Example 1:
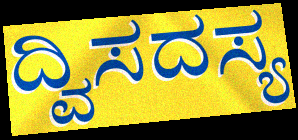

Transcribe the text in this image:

ದ್ವಿಸದಸ್ಯ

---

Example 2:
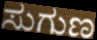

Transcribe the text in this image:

ಸುಗುಣ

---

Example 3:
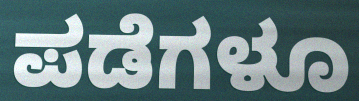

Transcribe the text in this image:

ಪಡೆಗಳೂ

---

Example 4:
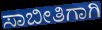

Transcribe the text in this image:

ಸಾಬೀತಿಗಾಗಿ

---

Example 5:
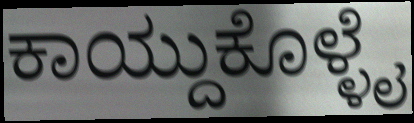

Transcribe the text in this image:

ಕಾಯ್ದುಕೊಳ್ಳೈ